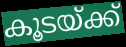
കൂടയ്ക്ക്